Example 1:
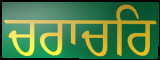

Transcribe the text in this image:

ਚਰਾਚਰਿ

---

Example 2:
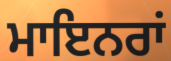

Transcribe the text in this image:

ਮਾਇਨਰਾਂ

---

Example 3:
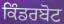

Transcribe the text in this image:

ਕਿੰਡਰਬੋਟ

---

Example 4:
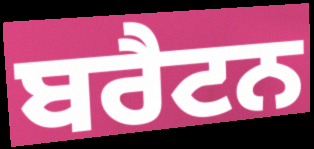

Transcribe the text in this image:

ਬਰੈਟਨ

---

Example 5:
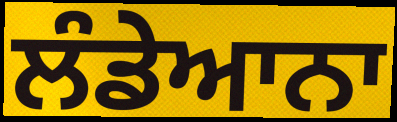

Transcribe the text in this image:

ਲੰਡੇਆਨਾ